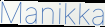
Manikka